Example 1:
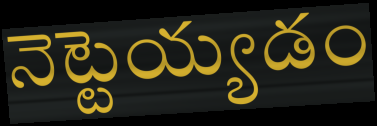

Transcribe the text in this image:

నెట్టెయ్యడం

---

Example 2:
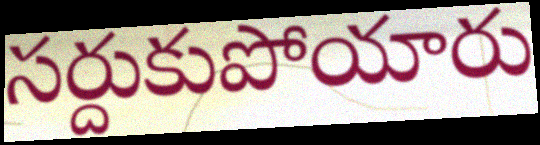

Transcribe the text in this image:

సర్దుకుపోయారు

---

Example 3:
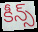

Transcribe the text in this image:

కీన్స్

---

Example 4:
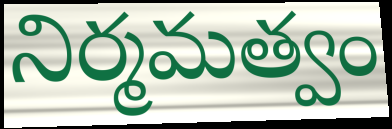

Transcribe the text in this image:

నిర్మమత్వం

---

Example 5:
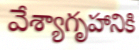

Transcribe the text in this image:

వేశ్యాగృహానికి